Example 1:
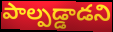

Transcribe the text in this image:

పాల్పడ్డాడని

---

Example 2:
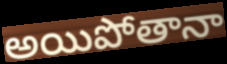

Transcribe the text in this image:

అయిపోతానా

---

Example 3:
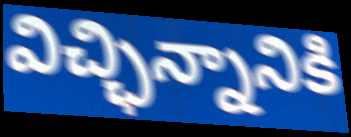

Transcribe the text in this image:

విచ్ఛిన్నానికి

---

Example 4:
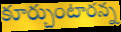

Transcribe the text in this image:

కూర్చుంటారన్న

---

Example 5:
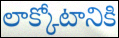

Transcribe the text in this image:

లాక్కోటానికి